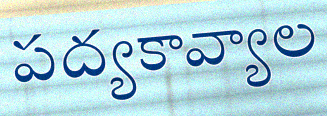
పద్యకావ్యాల